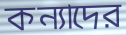
কন্যাদের